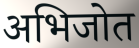
अभिजोत